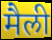
मैली